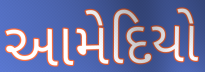
આમેદિયો